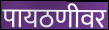
पायठणीवर